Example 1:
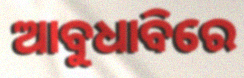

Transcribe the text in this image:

ଆବୁଧାବିରେ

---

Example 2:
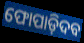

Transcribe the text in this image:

ଫୋପାଡ଼ିଦବ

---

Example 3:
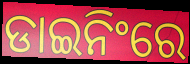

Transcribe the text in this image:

ଡାଇନିଂରେ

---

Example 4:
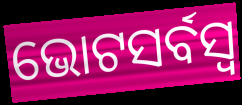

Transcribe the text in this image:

ଭୋଟସର୍ବସ୍ବ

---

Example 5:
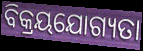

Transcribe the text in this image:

ବିକ୍ରୟଯୋଗ୍ୟତା